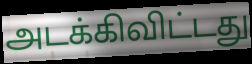
அடக்கிவிட்டது